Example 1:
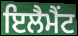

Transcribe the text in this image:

ਇਲੈਮੈਂਟ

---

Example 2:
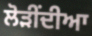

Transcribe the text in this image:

ਲੋੜੀਂਦੀਆ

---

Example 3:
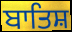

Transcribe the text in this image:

ਬਾਤਿਸ਼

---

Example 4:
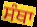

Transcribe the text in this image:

ਸੰਥਾ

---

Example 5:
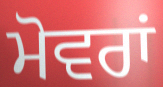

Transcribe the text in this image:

ਮੋਵਰਾਂ